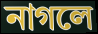
নাগলে